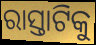
ରାସ୍ତାଟିକୁ